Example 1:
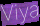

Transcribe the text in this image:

Viya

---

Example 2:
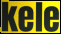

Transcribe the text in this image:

kele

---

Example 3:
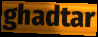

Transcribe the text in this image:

ghadtar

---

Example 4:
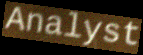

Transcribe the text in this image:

Analyst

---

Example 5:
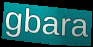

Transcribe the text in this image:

gbara